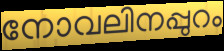
നോവലിനപ്പുറം